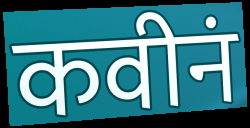
कवीनं